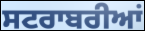
ਸਟਰਾਬਰੀਆਂ